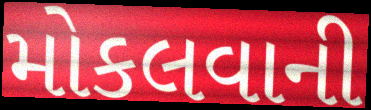
મોકલવાની